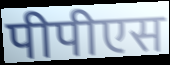
पीपीएस